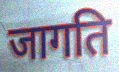
जागति